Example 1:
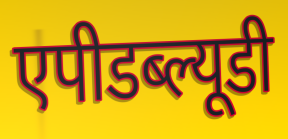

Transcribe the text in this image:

एपीडब्ल्यूडी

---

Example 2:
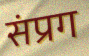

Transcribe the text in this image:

संप्रग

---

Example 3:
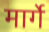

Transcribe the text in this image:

मार्गे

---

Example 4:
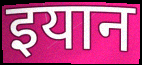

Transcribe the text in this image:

इयान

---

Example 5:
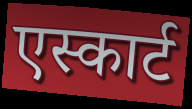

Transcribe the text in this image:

एस्कार्ट